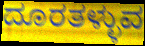
ದೂರತಳ್ಳುವ